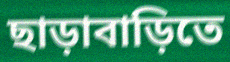
ছাড়াবাড়িতে